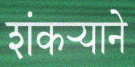
शंकर्‍याने